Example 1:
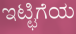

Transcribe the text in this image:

ಇಟ್ಟಿಗೆಯ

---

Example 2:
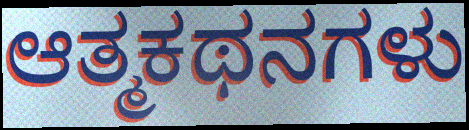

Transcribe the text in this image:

ಆತ್ಮಕಥನಗಳು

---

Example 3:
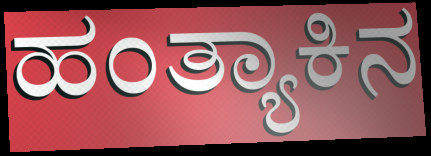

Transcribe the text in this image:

ಹಂತ್ಯಾಕಿನ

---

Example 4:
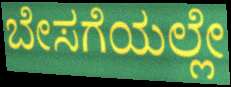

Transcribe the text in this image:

ಬೇಸಗೆಯಲ್ಲೇ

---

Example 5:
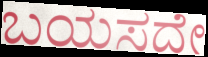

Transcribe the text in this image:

ಬಯಸದೇ